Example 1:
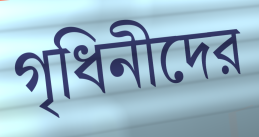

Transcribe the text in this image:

গৃধিনীদের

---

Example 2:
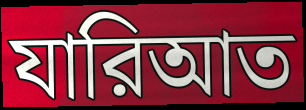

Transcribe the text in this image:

যারিআত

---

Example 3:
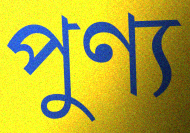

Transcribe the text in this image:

পুণ্য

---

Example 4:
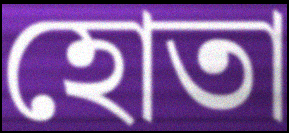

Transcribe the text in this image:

হোতা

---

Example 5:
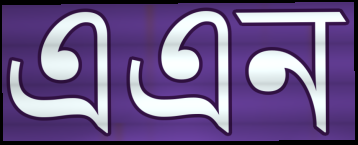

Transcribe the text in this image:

এএন